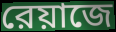
রেয়াজে